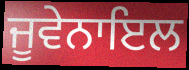
ਜੂਵੇਨਾਇਲ